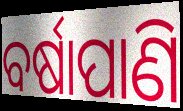
ବର୍ଷାପାଣି